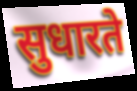
सुधारते